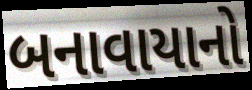
બનાવાયાનો